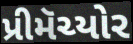
પ્રીમૅચ્યોર